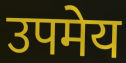
उपमेय